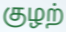
குழற்